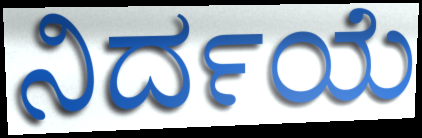
ನಿರ್ದಯೆ